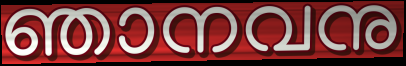
ഞാനവനു